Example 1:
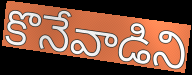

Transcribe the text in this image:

కొనేవాడిని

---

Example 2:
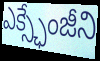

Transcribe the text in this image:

ఎక్స్ఛేంజీని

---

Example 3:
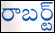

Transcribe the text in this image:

రాబర్ట్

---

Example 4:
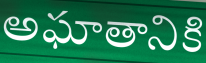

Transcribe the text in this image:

అఘాతానికి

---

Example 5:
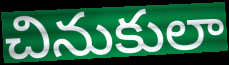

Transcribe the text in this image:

చినుకులా